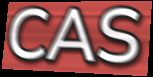
CAS